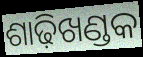
ଶାଢ଼ିଖଣ୍ଡକ